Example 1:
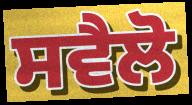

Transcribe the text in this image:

ਸਵੈਲੋ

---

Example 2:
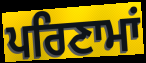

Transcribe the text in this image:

ਪਰਿਣਾਮਾਂ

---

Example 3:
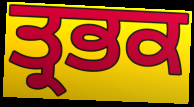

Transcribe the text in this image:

ਤ੍ਰਭਕ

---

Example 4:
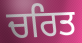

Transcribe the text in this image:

ਚਰਿਤ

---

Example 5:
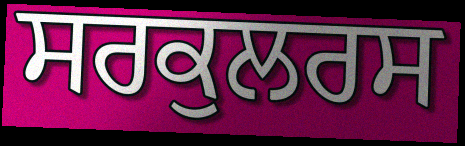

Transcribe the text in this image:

ਸਰਕੁਲਰਸ